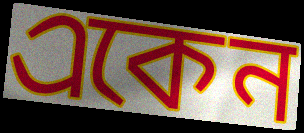
একেন